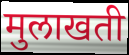
मुलाखती